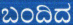
ಬಂದಿದ